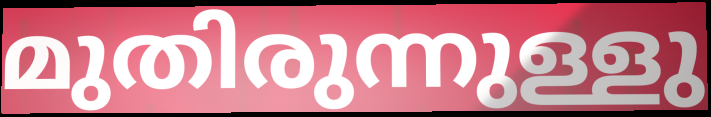
മുതിരുന്നുള്ളു